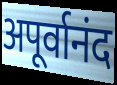
अपूर्वानंद